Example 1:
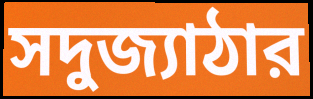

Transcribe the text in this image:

সদুজ্যাঠার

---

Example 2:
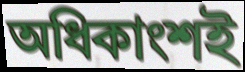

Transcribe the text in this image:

অধিকাংশই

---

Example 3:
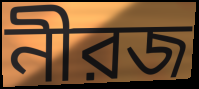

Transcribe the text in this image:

নীরজ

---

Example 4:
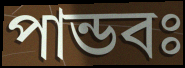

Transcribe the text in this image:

পান্ডবঃ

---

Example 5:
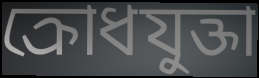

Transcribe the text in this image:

ক্রোধযুক্তা